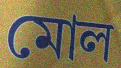
মোল